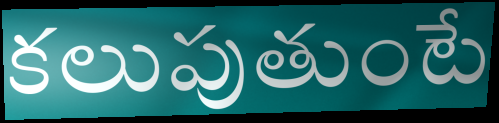
కలుపుతుంటే